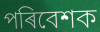
পৰিবেশক